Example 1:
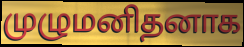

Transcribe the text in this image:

முழுமனிதனாக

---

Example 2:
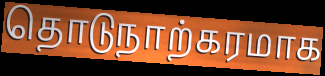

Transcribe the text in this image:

தொடுநாற்கரமாக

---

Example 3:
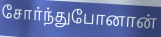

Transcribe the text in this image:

சோர்ந்துபோனான்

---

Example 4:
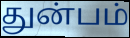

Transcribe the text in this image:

துன்பம்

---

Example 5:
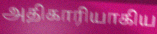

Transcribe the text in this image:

அதிகாரியாகிய